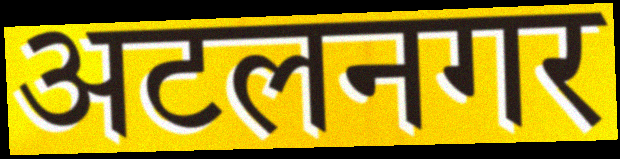
अटलनगर